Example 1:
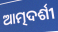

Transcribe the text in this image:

ଆତ୍ମଦର୍ଶୀ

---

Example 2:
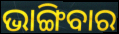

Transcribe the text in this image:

ଭାଙ୍ଗିବାର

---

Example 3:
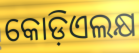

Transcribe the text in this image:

କୋଡ଼ିଏଲକ୍ଷ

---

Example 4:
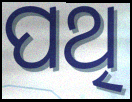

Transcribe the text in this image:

ପଥି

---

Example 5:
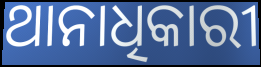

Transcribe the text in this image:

ଥାନାଧିକାରୀ